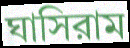
ঘাসিরাম